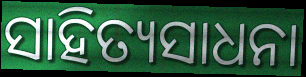
ସାହିତ୍ୟସାଧନା